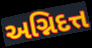
અગ્નિદત્ત